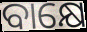
ବାକ୍ଷେ